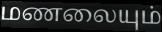
மணலையும்